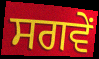
ਸਗਵੇਂ